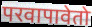
परवापावेतो